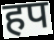
हप